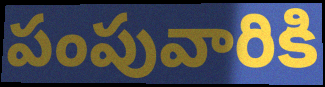
పంపువారికి